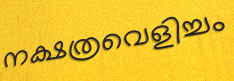
നക്ഷത്രവെളിച്ചം